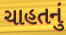
ચાહતનું